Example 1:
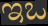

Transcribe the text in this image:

ಇಒ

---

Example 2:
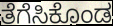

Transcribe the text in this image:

ತೆಗೆಸಿಕೊಂಡ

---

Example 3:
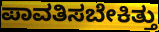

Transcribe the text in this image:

ಪಾವತಿಸಬೇಕಿತ್ತು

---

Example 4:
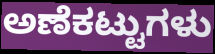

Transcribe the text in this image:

ಅಣೆಕಟ್ಟುಗಳು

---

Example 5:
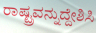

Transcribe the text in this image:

ರಾಷ್ಟ್ರವನ್ನುದ್ದೇಶಿಸಿ